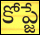
కోప్జే